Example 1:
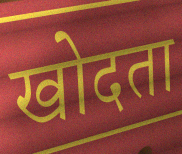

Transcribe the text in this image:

खोदता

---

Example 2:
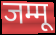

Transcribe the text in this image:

जम्मू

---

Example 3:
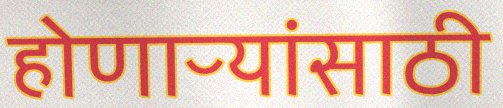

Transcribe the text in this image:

होणाऱ्यांसाठी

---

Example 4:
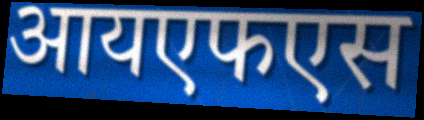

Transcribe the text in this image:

आयएफएस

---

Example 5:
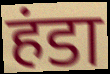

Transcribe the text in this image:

हंडा